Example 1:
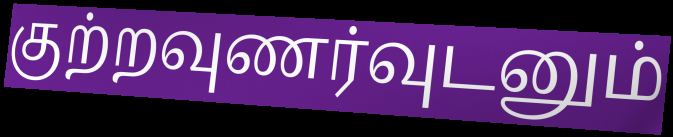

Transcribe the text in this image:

குற்றவுணர்வுடனும்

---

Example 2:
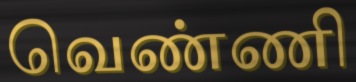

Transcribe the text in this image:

வெண்ணி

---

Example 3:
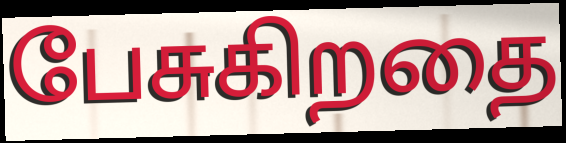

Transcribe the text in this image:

பேசுகிறதை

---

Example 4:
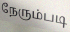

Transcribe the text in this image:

நேரும்படி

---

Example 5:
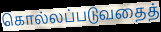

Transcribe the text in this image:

கொல்லப்படுவதைத்